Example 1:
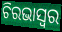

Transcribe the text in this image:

ଚିରଭାସ୍ଵର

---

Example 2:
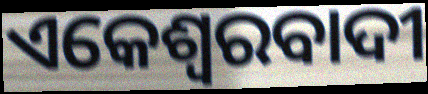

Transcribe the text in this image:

ଏକେଶ୍ଵରବାଦୀ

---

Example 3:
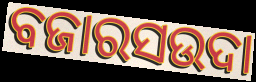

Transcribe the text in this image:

ବଜାରସଉଦା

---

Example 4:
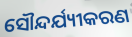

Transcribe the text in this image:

ସୌନ୍ଦର୍ଯ୍ୟୀକରଣ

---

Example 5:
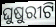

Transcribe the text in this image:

ଘୁଷୁରୀଟି